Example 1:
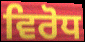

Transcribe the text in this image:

ਵਿਰੋਧ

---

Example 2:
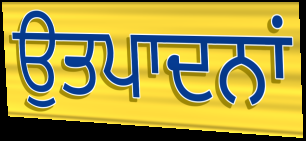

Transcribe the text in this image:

ਉਤਪਾਦਨਾਂ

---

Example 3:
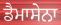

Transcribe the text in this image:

ਡੈਮਾਸੇਨਾ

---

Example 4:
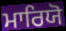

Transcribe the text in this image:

ਮਾਰਿਯੋ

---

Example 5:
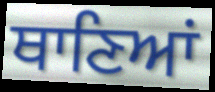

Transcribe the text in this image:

ਥਾਣਿਆਂ